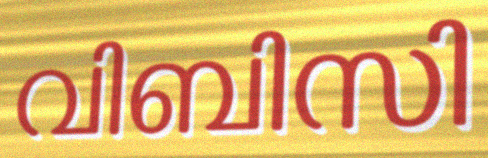
വിബിസി